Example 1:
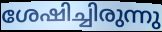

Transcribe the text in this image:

ശേഷിച്ചിരുന്നു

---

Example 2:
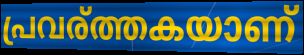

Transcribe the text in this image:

പ്രവര്ത്തകയാണ്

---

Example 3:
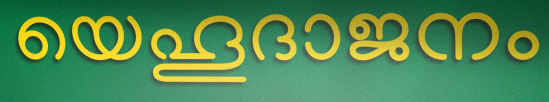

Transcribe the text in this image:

യെഹൂദാജനം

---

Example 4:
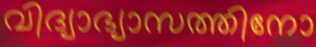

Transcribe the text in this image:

വിദ്യാഭ്യാസത്തിനോ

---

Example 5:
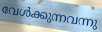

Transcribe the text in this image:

വേൾക്കുന്നവന്നു